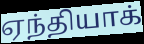
ஏந்தியாக்